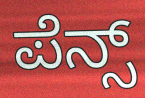
ಪೆನ್ಸ್